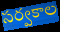
సర్వకాల